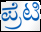
ಪ್ರೆಟಿ